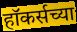
हॉकर्सच्या